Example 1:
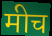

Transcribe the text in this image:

मीच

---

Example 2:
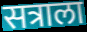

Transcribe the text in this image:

सत्राला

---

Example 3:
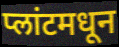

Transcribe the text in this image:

प्लांटमधून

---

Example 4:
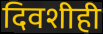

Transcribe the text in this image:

दिवशीही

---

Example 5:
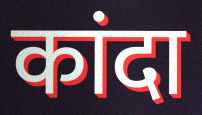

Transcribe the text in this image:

कांदा